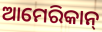
ଆମେରିକାନ୍